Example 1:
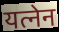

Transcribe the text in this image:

यत्नेन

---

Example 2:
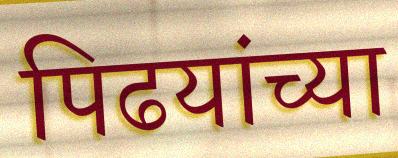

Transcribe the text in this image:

पिढयांच्या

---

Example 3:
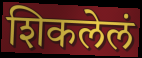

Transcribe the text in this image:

शिकलेलं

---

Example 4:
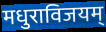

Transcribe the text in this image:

मधुराविजयम्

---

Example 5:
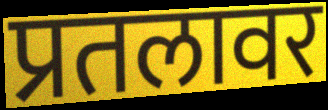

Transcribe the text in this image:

प्रतलावर